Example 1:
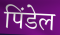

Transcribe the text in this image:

पिंडेल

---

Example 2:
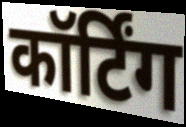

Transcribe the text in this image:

कॉर्टिंग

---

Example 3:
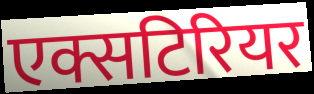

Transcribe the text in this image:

एक्सटिरियर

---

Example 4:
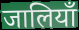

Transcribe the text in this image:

जालियाँ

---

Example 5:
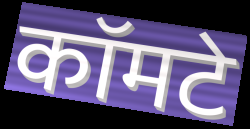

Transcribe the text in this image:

कॉमटे